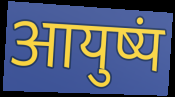
आयुष्यं